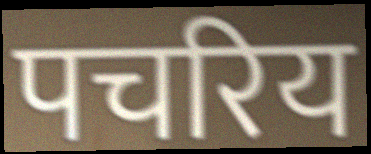
पचरिय